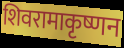
शिवरामाकृष्णन